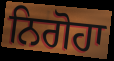
ਨਿਗੋਹਾ